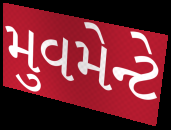
મુવમેન્ટે